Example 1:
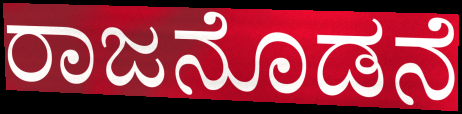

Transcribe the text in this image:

ರಾಜನೊಡನೆ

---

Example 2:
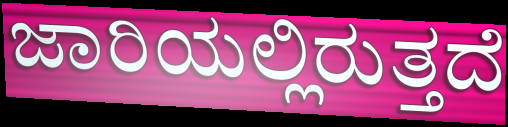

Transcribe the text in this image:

ಜಾರಿಯಲ್ಲಿರುತ್ತದೆ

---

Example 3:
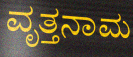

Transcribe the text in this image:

ವೃತ್ತನಾಮ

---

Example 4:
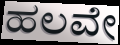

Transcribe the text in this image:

ಹಲವೇ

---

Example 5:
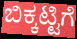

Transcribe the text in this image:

ಬಿಕ್ಕಟ್ಟಿಗೆ